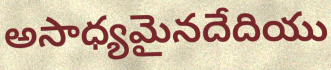
అసాధ్యమైనదేదియు